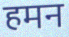
हमन